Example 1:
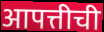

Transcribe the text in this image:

आपत्तीची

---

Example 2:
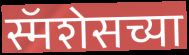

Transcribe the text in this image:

स्मॅशेसच्या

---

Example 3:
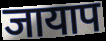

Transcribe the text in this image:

जायाप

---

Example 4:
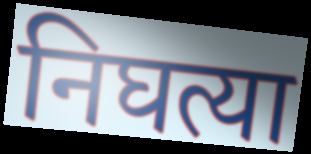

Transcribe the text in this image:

निघत्या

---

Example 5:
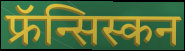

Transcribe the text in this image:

फ्रॅन्सिस्कन